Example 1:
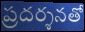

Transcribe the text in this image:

ప్రదర్శనతో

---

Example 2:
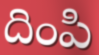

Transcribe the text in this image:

దింపి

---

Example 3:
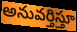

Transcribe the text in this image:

అనువర్తిస్తూ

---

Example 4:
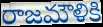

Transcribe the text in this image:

రాజమౌళికి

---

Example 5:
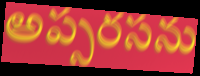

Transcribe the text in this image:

అప్సరసను